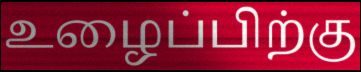
உழைப்பிற்கு